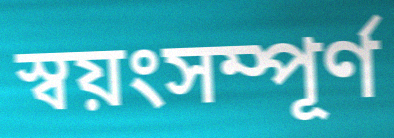
স্বয়ংসম্পূৰ্ণ